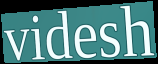
videsh